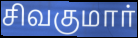
சிவகுமார்